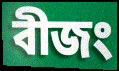
বীজং